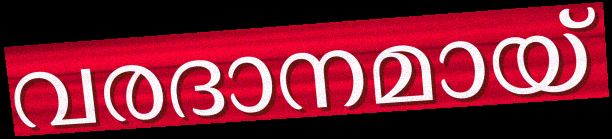
വരദാനമായ്